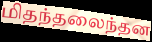
மிதந்தலைந்தன